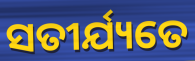
ସତୀର୍ଯ୍ୟତେ